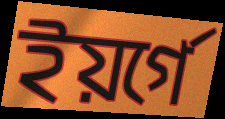
ইয়র্গে